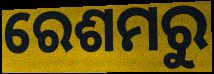
ରେଶମରୁ